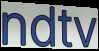
ndtv